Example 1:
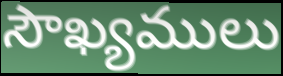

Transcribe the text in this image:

సౌఖ్యములు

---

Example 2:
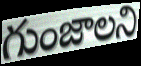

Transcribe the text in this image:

గుంజాలని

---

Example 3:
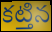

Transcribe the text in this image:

కట్తిన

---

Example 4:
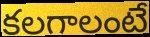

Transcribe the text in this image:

కలగాలంటే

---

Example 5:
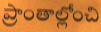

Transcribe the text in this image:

ప్రాంతాల్లోంచి